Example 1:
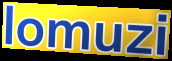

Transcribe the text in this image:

lomuzi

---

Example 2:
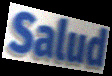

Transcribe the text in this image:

Salud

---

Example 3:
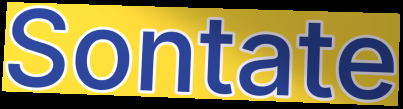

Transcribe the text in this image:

Sontate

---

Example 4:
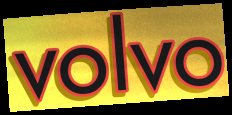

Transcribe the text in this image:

volvo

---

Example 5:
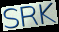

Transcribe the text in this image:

SRK